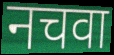
नचवा